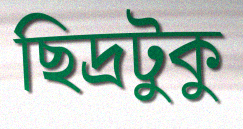
ছিদ্রটুকু